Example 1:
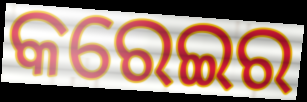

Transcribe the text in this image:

କରେଇର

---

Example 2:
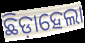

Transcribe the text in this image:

ଛିଡ଼ାହେଲା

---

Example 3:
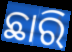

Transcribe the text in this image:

ଛାରି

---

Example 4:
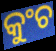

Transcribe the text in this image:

କୁଂଚ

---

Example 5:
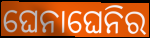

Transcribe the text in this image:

ଘେନାଘେନିର